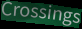
Crossings